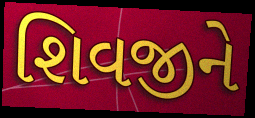
શિવજીને